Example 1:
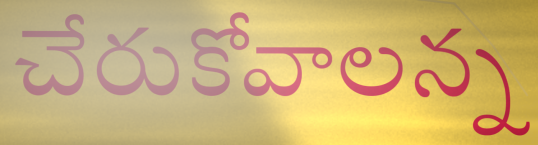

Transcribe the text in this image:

చేరుకోవాలన్న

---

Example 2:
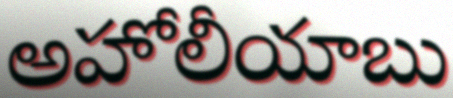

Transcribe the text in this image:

అహోలీయాబు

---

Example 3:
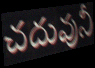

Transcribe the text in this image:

చదువునీ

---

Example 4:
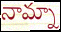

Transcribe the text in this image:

నామ్నా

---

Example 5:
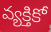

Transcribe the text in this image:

వ్యక్తికో